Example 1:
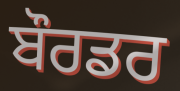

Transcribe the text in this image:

ਬੌਰਡਰ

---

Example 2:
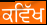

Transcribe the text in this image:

ਕਵਿੱਖ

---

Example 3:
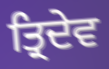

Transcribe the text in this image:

ਤ੍ਰਿਦੇਵ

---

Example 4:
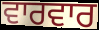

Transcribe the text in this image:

ਵਾਰਵਾਰ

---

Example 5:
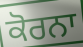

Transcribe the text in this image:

ਕੋਰਨਾ